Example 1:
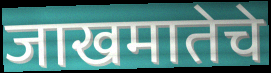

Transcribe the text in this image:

जाखमातेचे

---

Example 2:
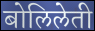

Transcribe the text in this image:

बोलिलेती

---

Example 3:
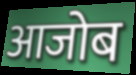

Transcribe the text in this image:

आजोब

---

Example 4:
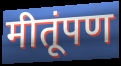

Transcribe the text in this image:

मीतूंपण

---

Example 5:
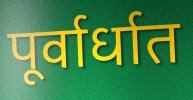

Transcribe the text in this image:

पूर्वार्धात